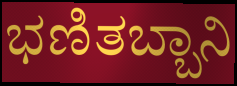
ಭಣಿತಬ್ಬಾನಿ